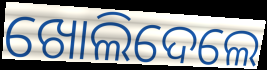
ଖୋଲିଦେଲେ